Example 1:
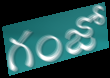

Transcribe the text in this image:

గంజో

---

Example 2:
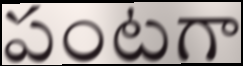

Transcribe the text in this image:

పంటగా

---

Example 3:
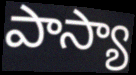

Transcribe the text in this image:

పాస్యా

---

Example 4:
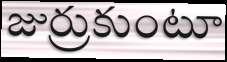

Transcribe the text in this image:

జుర్రుకుంటూ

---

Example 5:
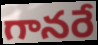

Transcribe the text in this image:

గానరే